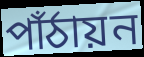
পাঁঠায়ন